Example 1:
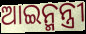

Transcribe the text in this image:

ଆଇନ୍ମନ୍ତ୍ରୀ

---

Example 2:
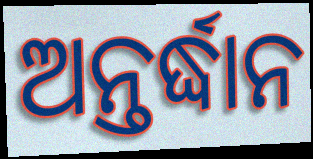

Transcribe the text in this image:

ଅନ୍ତର୍ଦ୍ଧାନ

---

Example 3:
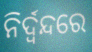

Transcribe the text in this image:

ନିର୍ଦ୍ୱନ୍ଦରେ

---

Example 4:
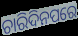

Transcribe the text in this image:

ଚାରିଦିନପରେ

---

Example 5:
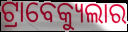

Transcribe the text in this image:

ଟ୍ରାବେକ୍ୟୁଲାର